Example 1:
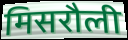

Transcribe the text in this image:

मिसरौली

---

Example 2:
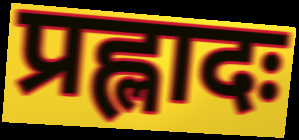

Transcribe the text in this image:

प्रह्लादः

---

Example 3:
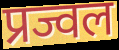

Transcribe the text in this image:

प्रज्वल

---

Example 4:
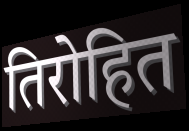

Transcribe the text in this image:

तिरोहित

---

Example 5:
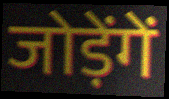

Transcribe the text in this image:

जोड़ेंगें